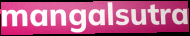
mangalsutra